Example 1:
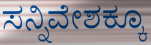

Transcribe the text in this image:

ಸನ್ನಿವೇಶಕ್ಕೂ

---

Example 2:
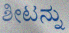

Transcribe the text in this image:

ಶೀಟನ್ನು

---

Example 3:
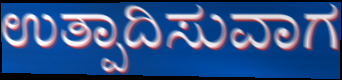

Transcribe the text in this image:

ಉತ್ಪಾದಿಸುವಾಗ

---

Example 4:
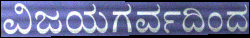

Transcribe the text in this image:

ವಿಜಯಗರ್ವದಿಂದ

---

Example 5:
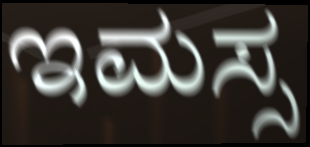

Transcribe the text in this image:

ಇಮಸ್ಸ